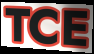
TCE